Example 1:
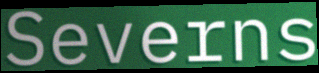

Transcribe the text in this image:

Severns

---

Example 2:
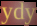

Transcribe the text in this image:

ydy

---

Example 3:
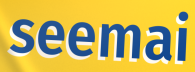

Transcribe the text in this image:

seemai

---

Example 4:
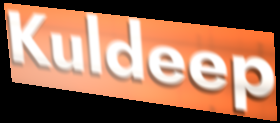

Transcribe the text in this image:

Kuldeep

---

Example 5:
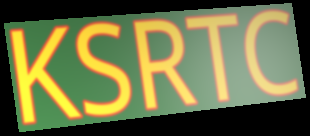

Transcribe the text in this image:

KSRTC